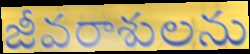
జీవరాశులను